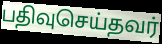
பதிவுசெய்தவர்